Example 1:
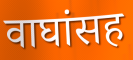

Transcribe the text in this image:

वाघांसह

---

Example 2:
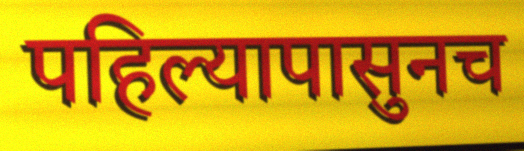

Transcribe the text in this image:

पहिल्यापासुनच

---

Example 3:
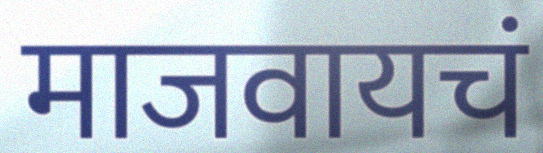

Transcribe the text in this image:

माजवायचं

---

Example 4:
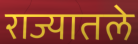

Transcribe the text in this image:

राज्यातले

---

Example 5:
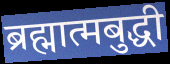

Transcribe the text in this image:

ब्रह्मात्मबुद्धी